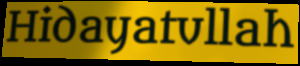
Hidayatullah